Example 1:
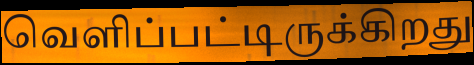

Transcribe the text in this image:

வெளிப்பட்டிருக்கிறது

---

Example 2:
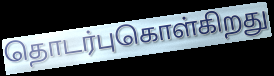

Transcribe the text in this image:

தொடர்புகொள்கிறது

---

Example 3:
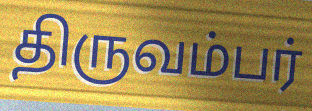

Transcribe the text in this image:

திருவம்பர்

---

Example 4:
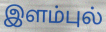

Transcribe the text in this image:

இளம்புல்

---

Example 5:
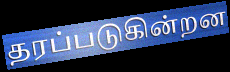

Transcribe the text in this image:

தரப்படுகின்றன